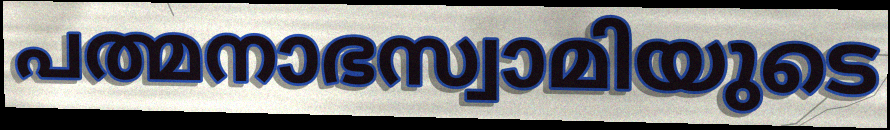
പത്മനാഭസ്വാമിയുടെ